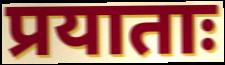
प्रयाताः